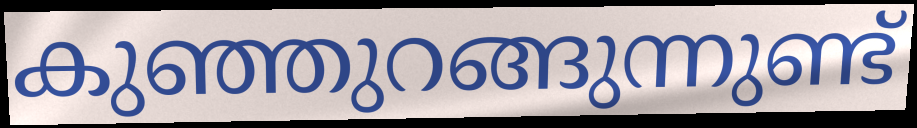
കുഞ്ഞുറങ്ങുന്നുണ്ട്